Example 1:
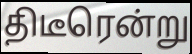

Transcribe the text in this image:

திடீரென்று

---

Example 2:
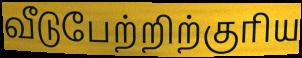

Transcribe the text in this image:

வீடுபேற்றிற்குரிய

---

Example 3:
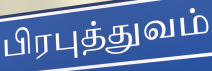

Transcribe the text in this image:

பிரபுத்துவம்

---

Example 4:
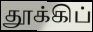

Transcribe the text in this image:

தூக்கிப்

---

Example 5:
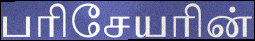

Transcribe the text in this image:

பரிசேயரின்